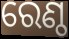
ରେଣ୍ଠ